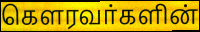
கௌரவர்களின்